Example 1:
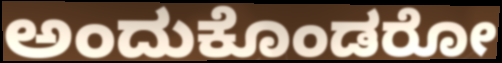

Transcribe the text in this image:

ಅಂದುಕೊಂಡರೋ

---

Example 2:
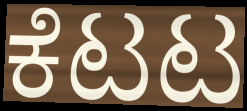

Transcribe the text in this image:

ಕೆಟಟ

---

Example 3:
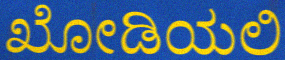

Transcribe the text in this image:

ಖೋಡಿಯಲಿ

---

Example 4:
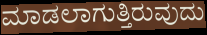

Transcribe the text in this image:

ಮಾಡಲಾಗುತ್ತಿರುವುದು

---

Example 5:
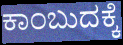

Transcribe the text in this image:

ಕಾಂಬುದಕ್ಕೆ